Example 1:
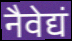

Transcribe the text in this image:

नैवेद्यं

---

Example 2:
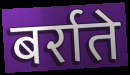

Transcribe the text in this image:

बर्राते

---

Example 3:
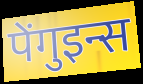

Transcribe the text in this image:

पेंगुइन्स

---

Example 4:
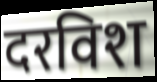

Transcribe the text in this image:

दरविश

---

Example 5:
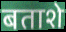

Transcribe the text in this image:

बताशे